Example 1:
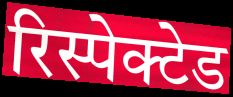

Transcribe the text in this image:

रिस्पेक्टेड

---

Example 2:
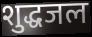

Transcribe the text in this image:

शुद्धजल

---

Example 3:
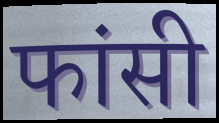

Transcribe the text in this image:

फांसी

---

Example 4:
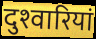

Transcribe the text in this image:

दुश्वारियां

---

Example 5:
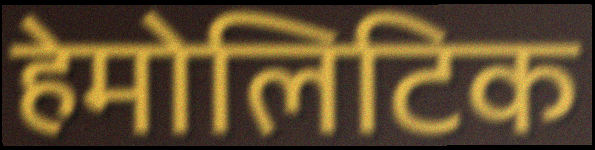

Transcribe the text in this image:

हेमोलिटिक